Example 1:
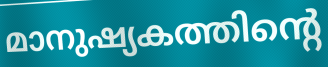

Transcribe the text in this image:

മാനുഷ്യകത്തിന്റെ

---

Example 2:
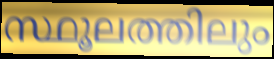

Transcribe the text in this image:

സ്ഥൂലത്തിലും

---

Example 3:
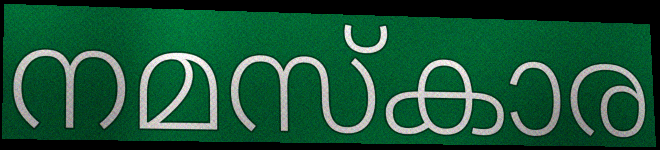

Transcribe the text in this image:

നമസ്കാര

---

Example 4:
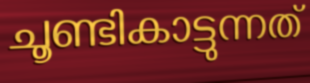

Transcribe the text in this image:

ചൂണ്ടികാട്ടുന്നത്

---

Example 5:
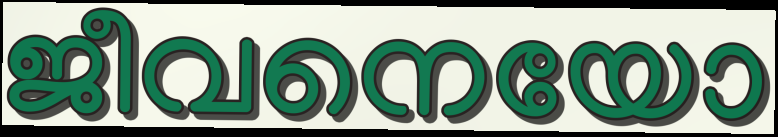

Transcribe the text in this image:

ജീവനെയോ